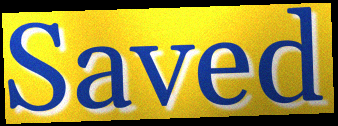
Saved